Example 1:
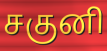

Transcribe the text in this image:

சகுனி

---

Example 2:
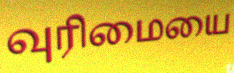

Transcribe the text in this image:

வுரிமையை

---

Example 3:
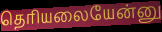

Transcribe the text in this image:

தெரியலையேன்னு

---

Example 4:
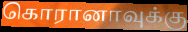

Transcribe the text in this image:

கொரானாவுக்கு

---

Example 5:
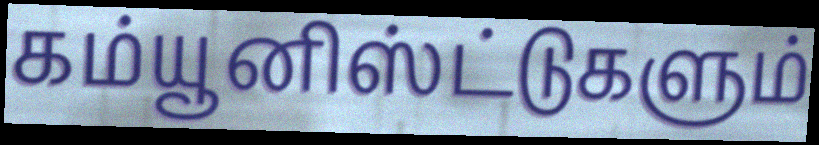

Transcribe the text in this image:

கம்யூனிஸ்ட்டுகளும்